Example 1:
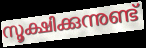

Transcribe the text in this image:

സൂക്ഷിക്കുന്നുണ്ട്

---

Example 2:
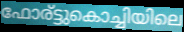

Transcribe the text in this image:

ഫോര്ട്ടുകൊച്ചിയിലെ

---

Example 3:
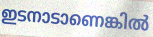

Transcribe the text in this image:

ഇടനാടാണെങ്കിൽ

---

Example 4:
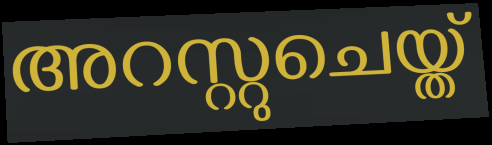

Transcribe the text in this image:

അറസ്റ്റുചെയ്ത്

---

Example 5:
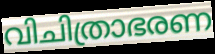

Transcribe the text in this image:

വിചിത്രാഭരണ